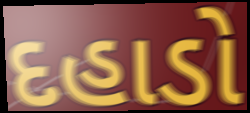
દહાડો